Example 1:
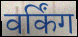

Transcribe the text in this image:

वर्किंग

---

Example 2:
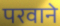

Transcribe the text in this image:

परवाने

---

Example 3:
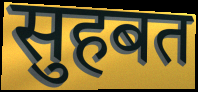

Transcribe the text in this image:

सुहबत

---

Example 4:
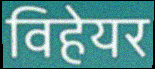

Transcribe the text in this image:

विहेयर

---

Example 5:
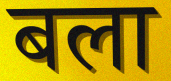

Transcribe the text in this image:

बला